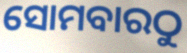
ସୋମବାରଠୁ